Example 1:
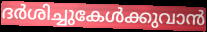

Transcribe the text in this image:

ദർശിച്ചുകേൾക്കുവാൻ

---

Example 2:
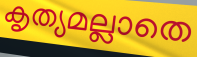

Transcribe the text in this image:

കൃത്യമല്ലാതെ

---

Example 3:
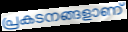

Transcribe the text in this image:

പ്രകടനങ്ങളാണ്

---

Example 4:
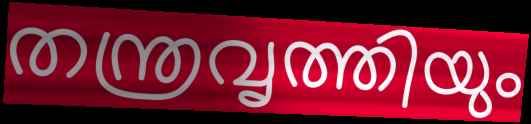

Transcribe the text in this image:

തന്ത്രവൃത്തിയും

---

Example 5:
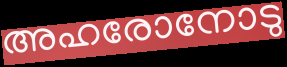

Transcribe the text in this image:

അഹരോനോടു